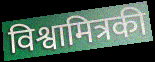
विश्वामित्रकी